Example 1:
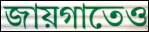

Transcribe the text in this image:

জায়গাতেও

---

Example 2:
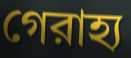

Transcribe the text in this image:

গেরাহ্য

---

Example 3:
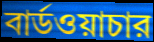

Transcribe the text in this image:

বার্ডওয়াচার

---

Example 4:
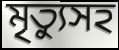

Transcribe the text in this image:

মৃত্যুসহ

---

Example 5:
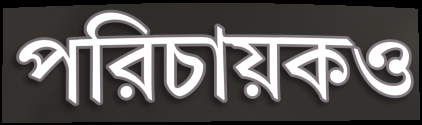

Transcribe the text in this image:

পরিচায়কও